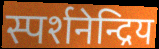
स्पर्शनेन्द्रिय